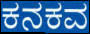
ಕನಕವ